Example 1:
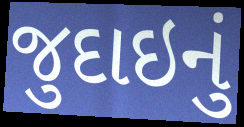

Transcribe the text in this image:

જુદાઇનું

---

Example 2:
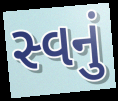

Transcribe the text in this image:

સ્વનું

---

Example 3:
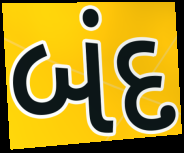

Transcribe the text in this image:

બંદ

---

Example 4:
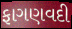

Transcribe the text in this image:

ફાગણવદી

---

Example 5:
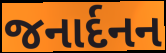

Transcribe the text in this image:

જનાર્દનન